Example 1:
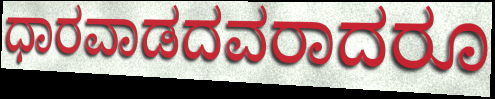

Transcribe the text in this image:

ಧಾರವಾಡದವರಾದರೂ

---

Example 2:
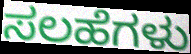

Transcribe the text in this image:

ಸಲಹೆಗಳು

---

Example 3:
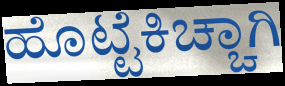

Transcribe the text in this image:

ಹೊಟ್ಟೆಕಿಚ್ಚಾಗಿ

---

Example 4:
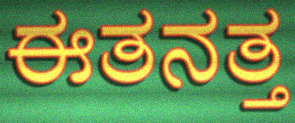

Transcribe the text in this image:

ಈತನತ್ತ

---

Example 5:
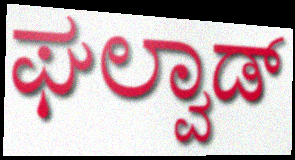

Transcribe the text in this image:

ಘಲ್ವಾಡ್